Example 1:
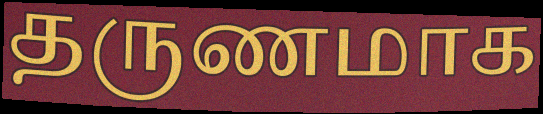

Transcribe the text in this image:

தருணமாக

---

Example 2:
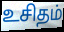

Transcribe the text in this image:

உசிதம்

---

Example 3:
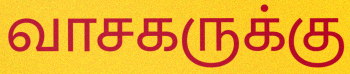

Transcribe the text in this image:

வாசகருக்கு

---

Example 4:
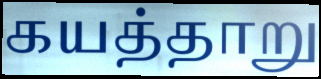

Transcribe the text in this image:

கயத்தாறு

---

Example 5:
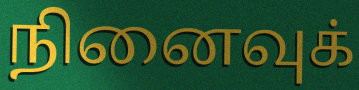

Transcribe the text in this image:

நினைவுக்